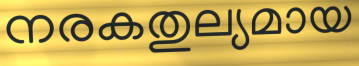
നരകതുല്യമായ